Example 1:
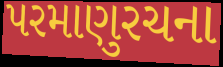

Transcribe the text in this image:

પરમાણુરચના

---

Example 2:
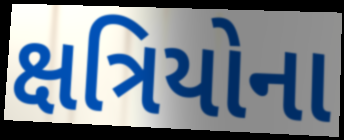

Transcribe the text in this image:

ક્ષત્રિયોના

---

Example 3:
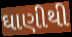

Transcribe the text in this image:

ઘાણીથી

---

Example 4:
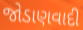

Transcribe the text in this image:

જોડાણવાદી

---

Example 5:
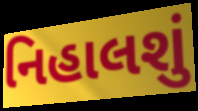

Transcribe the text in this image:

નિહાલશું